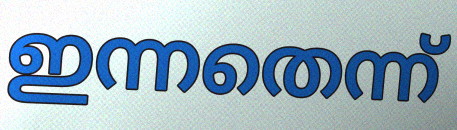
ഇന്നതെന്ന്